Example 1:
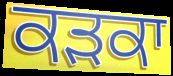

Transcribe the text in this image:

ਕੜਕਾ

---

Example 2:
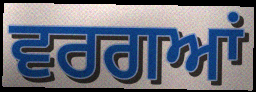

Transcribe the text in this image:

ਵਰਗਆਂ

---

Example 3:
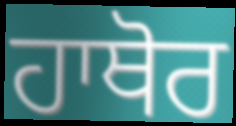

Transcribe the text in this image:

ਹਾਥੋਰ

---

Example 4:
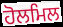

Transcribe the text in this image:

ਹੋਲਮਿਲ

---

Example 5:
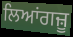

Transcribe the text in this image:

ਲਿਆਂਗਜ਼ੂ